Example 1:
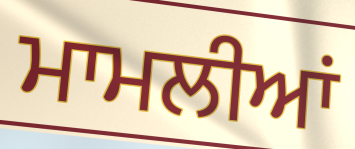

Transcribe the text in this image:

ਮਾਮਲੀਆਂ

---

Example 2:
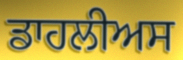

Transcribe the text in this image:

ਡਾਹਲੀਅਸ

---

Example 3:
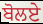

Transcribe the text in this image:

ਬੋਲਏ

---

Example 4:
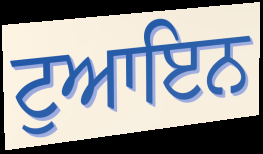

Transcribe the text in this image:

ਟੁਆਇਨ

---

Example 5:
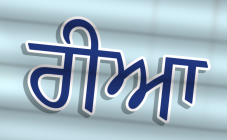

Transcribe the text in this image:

ਰੀਆ